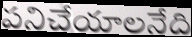
పనిచేయాలనేది